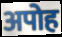
अपोह